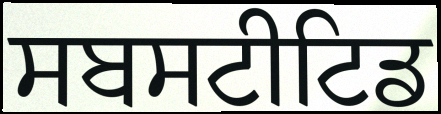
ਸਬਸਟੀਟਿਡ